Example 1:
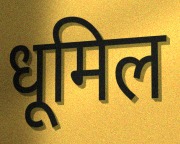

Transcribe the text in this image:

धूमिल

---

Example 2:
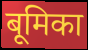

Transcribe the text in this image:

बूमिका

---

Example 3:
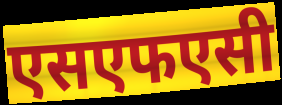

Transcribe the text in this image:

एसएफएसी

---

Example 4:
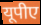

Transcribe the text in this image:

यूपीए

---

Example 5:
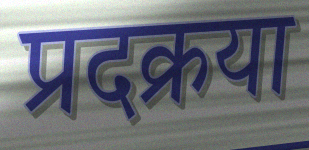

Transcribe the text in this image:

प्रदक्रया